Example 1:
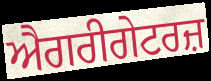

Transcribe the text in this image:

ਐਗਰੀਗੇਟਰਜ਼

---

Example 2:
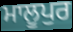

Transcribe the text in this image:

ਮਾਲੂਪੁਰ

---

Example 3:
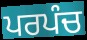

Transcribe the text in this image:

ਪਰਪੰਚ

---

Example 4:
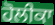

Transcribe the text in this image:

ਹੋਲੀਕਾ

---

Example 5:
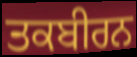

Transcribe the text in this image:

ਤਕਬੀਰਨ